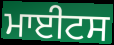
ਮਾਈਟਸ